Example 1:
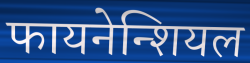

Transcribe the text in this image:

फायनेन्शियल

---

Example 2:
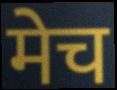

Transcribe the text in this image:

मेच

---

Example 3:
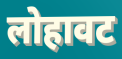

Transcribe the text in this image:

लोहावट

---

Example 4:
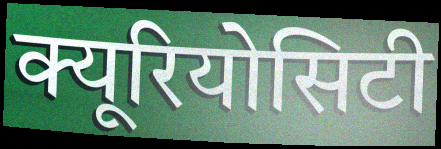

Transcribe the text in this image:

क्यूरियोसिटी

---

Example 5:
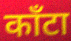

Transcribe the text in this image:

काँटा